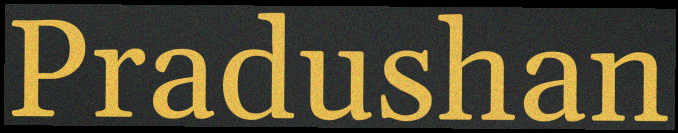
Pradushan